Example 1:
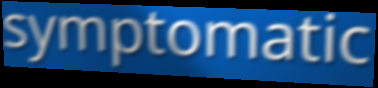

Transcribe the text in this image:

symptomatic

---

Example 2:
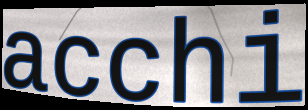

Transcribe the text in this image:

acchi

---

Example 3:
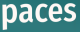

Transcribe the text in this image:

paces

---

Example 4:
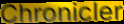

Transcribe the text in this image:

Chronicler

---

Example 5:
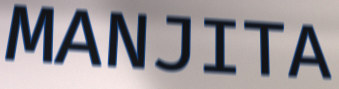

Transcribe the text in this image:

MANJITA